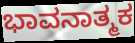
ಭಾವನಾತ್ಮಕ